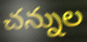
చన్నుల